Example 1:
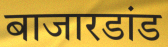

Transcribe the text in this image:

बाजारडांड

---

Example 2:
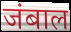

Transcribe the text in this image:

जंबाल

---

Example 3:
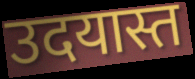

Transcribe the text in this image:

उदयास्त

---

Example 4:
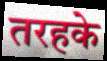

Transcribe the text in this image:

तरहके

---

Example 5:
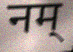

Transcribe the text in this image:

नम्